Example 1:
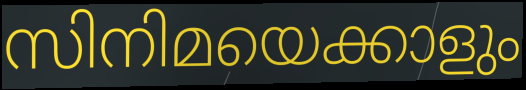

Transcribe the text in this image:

സിനിമയെക്കാളും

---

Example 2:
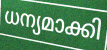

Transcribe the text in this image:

ധന്യമാക്കി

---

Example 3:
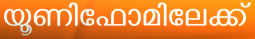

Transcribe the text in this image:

യൂണിഫോമിലേക്ക്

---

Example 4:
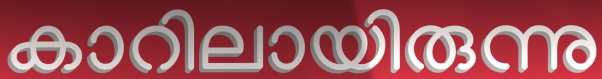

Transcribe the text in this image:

കാറിലായിരുന്നു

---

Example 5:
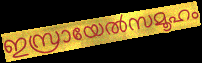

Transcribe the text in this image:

ഇസ്രായേൽസമൂഹം